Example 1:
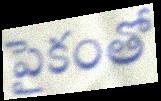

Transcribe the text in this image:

పైకంతో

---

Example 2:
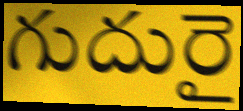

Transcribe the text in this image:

గుదురై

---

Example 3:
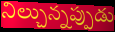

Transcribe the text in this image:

నిల్చున్నప్పుడు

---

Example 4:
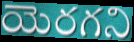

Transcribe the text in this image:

యెరగని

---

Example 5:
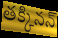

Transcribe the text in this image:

తక్కినన్